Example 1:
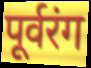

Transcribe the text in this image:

पूर्वरंग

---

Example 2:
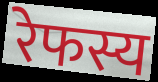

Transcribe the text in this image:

रेफस्य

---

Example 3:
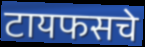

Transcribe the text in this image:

टायफसचे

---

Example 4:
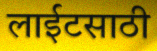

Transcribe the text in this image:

लाईटसाठी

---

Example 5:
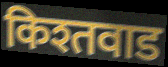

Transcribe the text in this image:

किश्तवाड